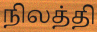
நிலத்தி